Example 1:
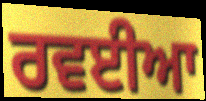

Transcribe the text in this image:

ਰਵਈਆ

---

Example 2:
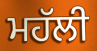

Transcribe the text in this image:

ਮਹੱਲੀ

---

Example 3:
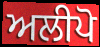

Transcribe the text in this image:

ਅਲੀਪੋ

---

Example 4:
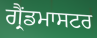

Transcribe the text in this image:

ਗ੍ਰੈਂਡਮਾਸਟਰ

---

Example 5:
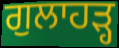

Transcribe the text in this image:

ਗੁਲਾਹੜ੍ਹ